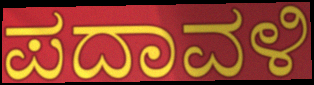
ಪದಾವಳಿ